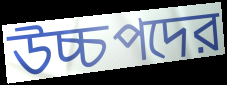
উচ্চপদের